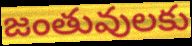
జంతువులకు